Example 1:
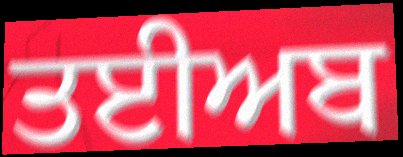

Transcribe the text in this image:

ਤਈਅਬ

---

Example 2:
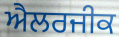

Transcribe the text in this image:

ਐਲਰਜੀਕ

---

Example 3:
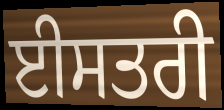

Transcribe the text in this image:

ਈਸਤਰੀ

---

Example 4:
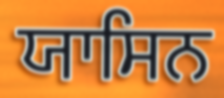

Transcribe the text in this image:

ਯਾਸਿਨ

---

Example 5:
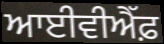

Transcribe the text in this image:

ਆਈਵੀਐੱਫ਼